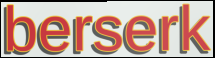
berserk